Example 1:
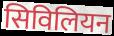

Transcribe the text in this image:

सिविलियन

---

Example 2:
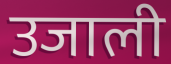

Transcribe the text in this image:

उजाली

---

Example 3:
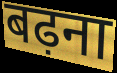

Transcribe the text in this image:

बढ़ना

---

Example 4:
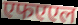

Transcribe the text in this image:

एफएएल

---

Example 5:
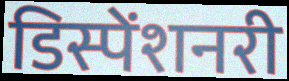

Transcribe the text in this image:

डिस्पेंशनरी